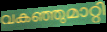
വകഞ്ഞുമാറ്റി